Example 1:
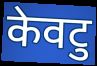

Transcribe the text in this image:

केवटु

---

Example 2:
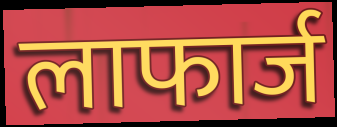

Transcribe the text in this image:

लाफार्ज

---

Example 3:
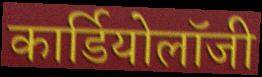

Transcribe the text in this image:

कार्डियोलॉजी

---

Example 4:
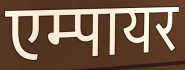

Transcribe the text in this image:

एम्पायर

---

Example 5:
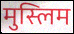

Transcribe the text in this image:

मुस्‍लिम